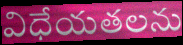
విధేయతలను